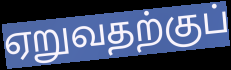
ஏறுவதற்குப்